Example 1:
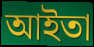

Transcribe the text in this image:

আইতা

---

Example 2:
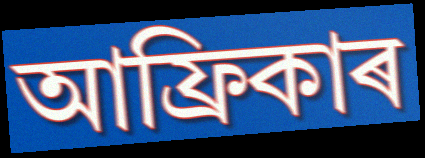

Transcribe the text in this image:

আফ্ৰিকাৰ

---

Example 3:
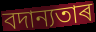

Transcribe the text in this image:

বদান্যতাৰ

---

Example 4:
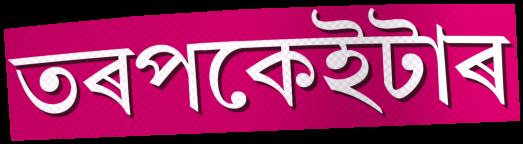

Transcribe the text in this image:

তৰপকেইটাৰ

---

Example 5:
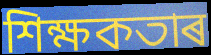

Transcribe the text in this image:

শিক্ষকতাৰ